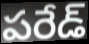
పరేడ్